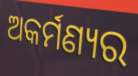
ଅକର୍ମଣ୍ୟର